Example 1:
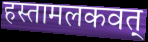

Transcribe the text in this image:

हस्तामलकवत्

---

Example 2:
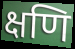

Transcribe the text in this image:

क्षणि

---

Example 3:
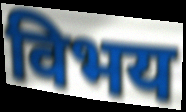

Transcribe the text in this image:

विभय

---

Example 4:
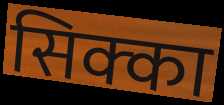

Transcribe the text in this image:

सिक्‍का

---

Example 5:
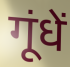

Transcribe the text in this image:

गूंधें